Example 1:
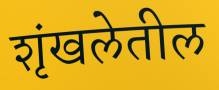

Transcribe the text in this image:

शृंखलेतील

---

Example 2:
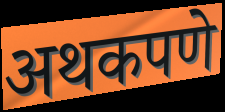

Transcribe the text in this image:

अथकपणे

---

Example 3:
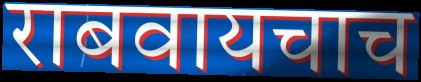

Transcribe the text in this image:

राबवायचाच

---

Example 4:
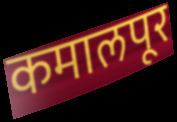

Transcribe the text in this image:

कमालपूर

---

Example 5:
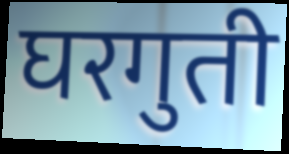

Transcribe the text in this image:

घरगुती